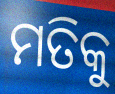
ମତିକୁ